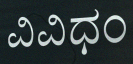
ವಿವಿಧಂ